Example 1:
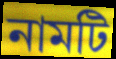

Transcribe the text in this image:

নামটি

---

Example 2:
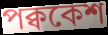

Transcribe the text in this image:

পক্বকেশ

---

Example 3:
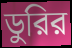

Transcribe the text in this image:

ডুরির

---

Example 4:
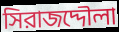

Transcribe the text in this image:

সিরাজদ্দৌলা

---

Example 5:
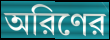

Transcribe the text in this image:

অরিণের